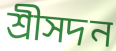
শ্রীসদন